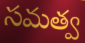
సమత్వ